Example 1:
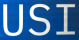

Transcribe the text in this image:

USI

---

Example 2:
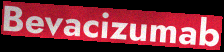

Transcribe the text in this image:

Bevacizumab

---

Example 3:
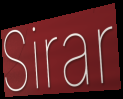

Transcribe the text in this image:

Sirar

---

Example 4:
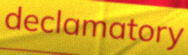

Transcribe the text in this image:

declamatory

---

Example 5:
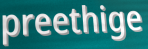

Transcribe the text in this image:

preethige